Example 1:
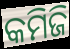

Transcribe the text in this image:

କମିଜି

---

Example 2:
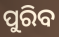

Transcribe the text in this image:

ପୁରିବ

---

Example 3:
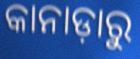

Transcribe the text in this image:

କାନାଡ଼ାରୁ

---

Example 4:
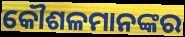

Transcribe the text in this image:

କୌଶଳମାନଙ୍କର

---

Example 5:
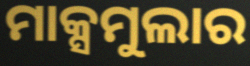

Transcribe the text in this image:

ମାକ୍ସମୁଲାର